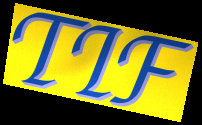
TIF